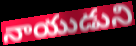
నాయుడుని